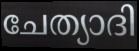
ചേത്യാദി